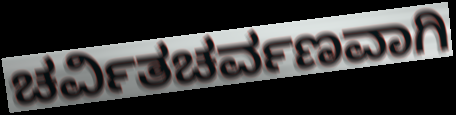
ಚರ್ವಿತಚರ್ವಣವಾಗಿ